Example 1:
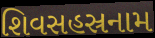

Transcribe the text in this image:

શિવસહસ્રનામ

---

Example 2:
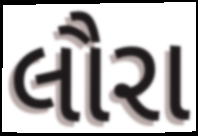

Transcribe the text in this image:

લૌરા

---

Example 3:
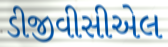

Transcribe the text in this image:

ડીજીવીસીએલ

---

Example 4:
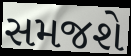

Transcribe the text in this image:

સમજશે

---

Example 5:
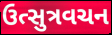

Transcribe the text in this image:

ઉત્સુત્રવચન